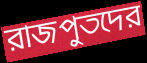
রাজপুতদের